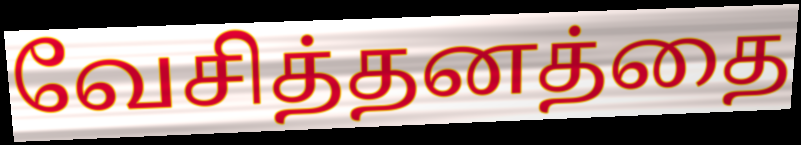
வேசித்தனத்தை